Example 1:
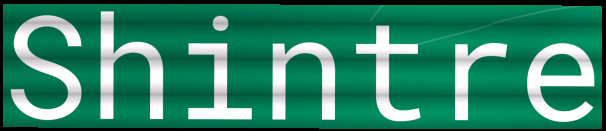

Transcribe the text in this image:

Shintre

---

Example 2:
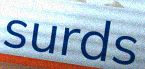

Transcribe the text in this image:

surds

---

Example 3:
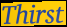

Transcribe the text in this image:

Thirst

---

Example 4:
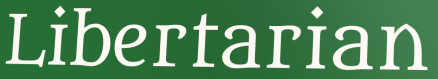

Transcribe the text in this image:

Libertarian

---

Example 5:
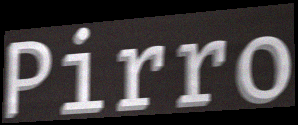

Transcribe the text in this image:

Pirro